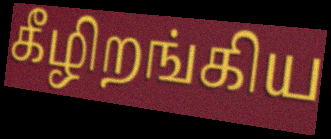
கீழிறங்கிய